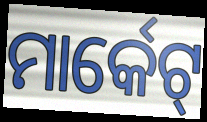
ମାର୍କେଟ୍